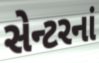
સેન્ટરનાં